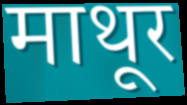
माथूर